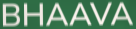
BHAAVA